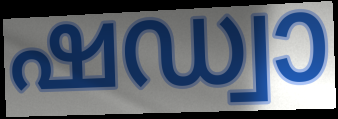
ഷഡ്വാ